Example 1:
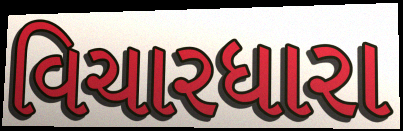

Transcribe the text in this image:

વિચારધારા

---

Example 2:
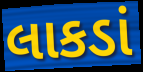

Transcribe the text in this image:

લાકડાં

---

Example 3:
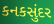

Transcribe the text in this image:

કનકસુંદર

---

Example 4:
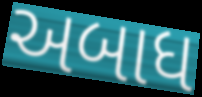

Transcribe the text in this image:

અબાધ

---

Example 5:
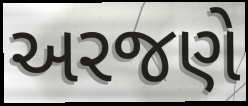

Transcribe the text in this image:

અરજણે